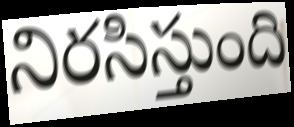
నిరసిస్తుంది